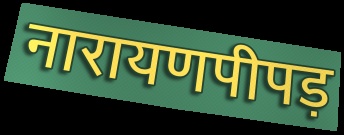
नारायणपीपड़